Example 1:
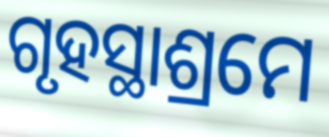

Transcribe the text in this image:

ଗୃହସ୍ଥାଶ୍ରମେ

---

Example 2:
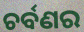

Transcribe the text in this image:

ଚର୍ବଣର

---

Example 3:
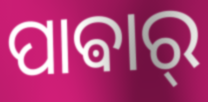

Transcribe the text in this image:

ପାଵାର୍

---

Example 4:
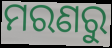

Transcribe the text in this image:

ମରଣରୁ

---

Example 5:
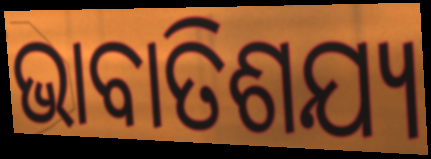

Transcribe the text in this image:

ଭାବାତିଶଯ୍ୟ